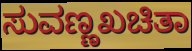
ಸುವಣ್ಣಖಚಿತಾ